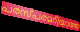
പരസ്പരമറിയാത്ത